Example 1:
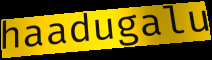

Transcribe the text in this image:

haadugalu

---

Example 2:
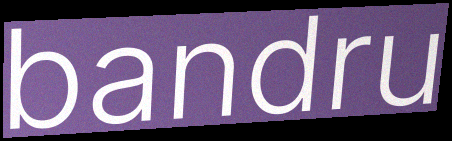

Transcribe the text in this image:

bandru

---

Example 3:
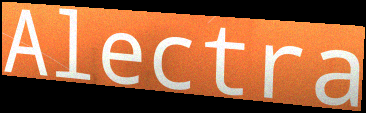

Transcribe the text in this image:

Alectra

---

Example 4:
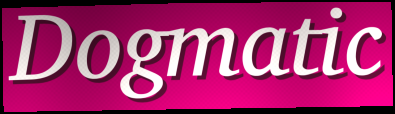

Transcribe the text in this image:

Dogmatic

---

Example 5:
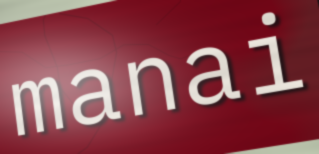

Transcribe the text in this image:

manai